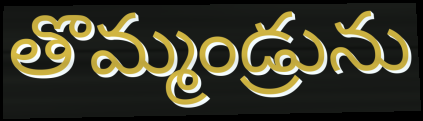
తొమ్మండ్రును